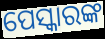
ପେସ୍କାରଙ୍କ